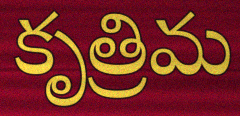
కృత్రిమ